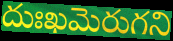
దుఃఖమెరుగని